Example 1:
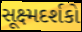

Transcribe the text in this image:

સૂક્ષ્મદર્શકો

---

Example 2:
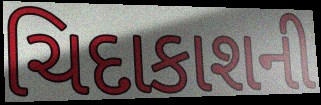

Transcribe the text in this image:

ચિદાકાશની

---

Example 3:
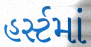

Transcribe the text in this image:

હર્સ્ટમાં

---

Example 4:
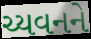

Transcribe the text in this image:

ચ્યવનને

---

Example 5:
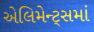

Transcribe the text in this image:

એલિમેન્ટ્સમાં